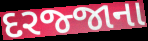
દરજ્જાના